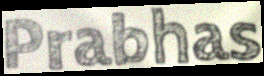
Prabhas